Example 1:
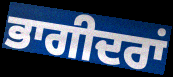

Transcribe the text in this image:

ਭਾਗੀਦਰਾਂ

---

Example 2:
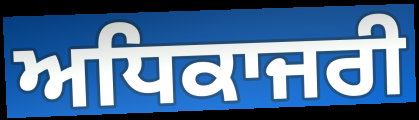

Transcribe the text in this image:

ਅਧਿਕਾਜਰੀ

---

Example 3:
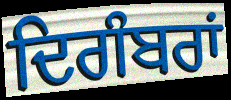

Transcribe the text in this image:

ਦਿਗੰਬਰਾਂ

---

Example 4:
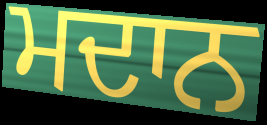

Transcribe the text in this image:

ਮਦਾਨ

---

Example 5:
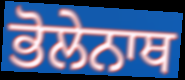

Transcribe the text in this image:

ਭੋਲੇਨਾਥ